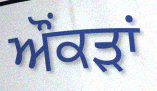
ਔਂਕੜਾਂ